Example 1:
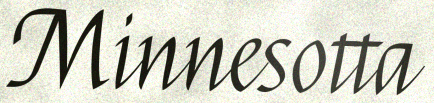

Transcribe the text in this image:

Minnesotta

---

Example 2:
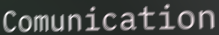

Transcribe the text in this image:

Comunication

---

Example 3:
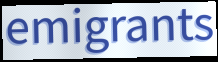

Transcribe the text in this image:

emigrants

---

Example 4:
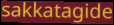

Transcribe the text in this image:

sakkatagide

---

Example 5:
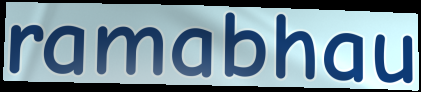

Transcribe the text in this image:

ramabhau